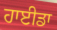
ਹਾਈਡਾ